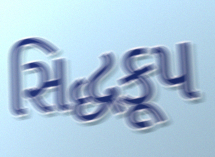
સિદ્ધકૂપ